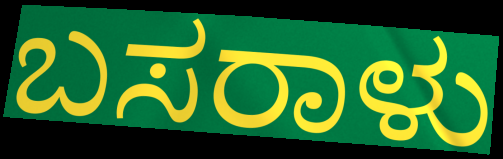
ಬಸರಾಳು